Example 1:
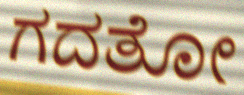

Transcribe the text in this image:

ಗದತೋ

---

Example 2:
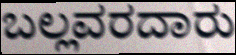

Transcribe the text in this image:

ಬಲ್ಲವರದಾರು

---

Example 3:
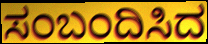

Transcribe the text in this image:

ಸಂಬಂದಿಸಿದ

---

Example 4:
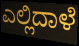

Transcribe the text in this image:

ಎಲ್ಲಿದಾಳೆ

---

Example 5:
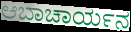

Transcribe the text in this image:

ಆಬಾಚಾರ್ಯನ